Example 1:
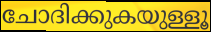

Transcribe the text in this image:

ചോദിക്കുകയുള്ളൂ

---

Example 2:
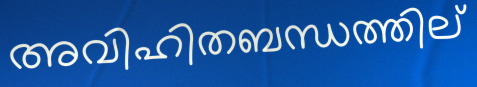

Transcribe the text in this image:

അവിഹിതബന്ധത്തില്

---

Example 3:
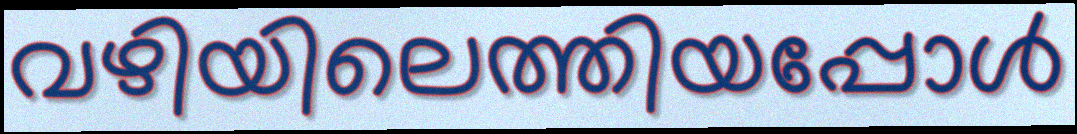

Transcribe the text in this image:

വഴിയിലെത്തിയപ്പോൾ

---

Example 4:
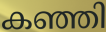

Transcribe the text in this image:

കഞ്ഞി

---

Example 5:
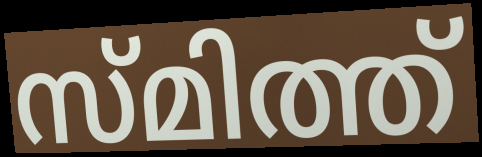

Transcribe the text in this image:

സ്മിത്ത്